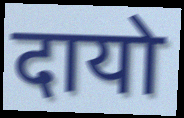
दायो